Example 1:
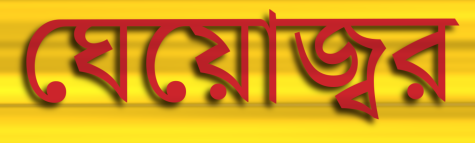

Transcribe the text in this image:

ঘেয়োজ্বর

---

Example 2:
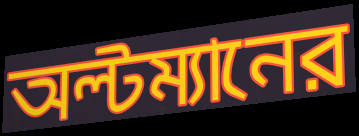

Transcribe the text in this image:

অল্টম্যানের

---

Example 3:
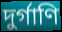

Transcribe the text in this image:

দুর্গাণি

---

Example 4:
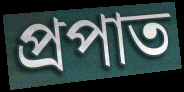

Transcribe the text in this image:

প্রপাত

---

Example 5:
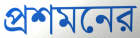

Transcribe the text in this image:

প্রশমনের